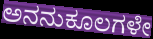
ಅನನುಕೂಲಗಳೇ